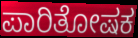
ಪಾರಿತೋಷಕ